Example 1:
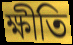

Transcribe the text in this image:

ক্ষীতি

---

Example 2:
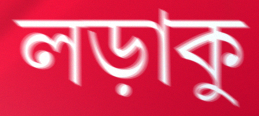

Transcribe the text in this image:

লড়াকু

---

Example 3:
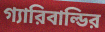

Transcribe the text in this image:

গ্যারিবাল্ডির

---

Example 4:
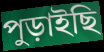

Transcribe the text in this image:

পুড়াইছি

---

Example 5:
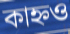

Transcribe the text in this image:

কাহ্নও